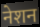
नेशन